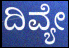
ದಿವ್ಯೇ